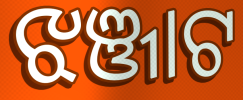
ଝଞ୍ଜାଟ